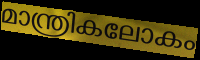
മാന്ത്രികലോകം